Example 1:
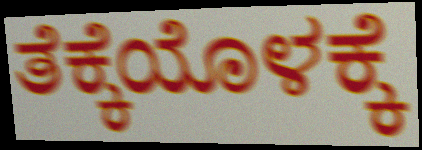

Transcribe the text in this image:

ತೆಕ್ಕೆಯೊಳಕ್ಕೆ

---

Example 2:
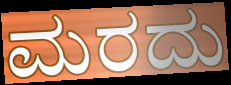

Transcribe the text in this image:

ಮರದು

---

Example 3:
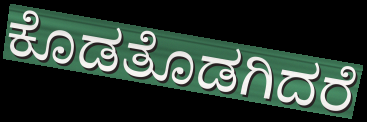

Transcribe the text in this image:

ಕೊಡತೊಡಗಿದರೆ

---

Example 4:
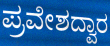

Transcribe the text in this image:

ಪ್ರವೇಶದ್ವಾರ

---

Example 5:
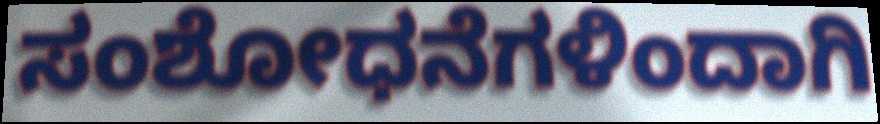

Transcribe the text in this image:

ಸಂಶೋಧನೆಗಳಿಂದಾಗಿ